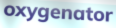
oxygenator